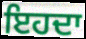
ਇਹਦਾ